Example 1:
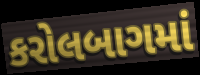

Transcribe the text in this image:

કરોલબાગમાં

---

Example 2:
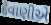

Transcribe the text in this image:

દેવાણીએ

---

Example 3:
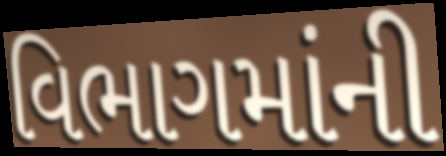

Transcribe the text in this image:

વિભાગમાંની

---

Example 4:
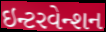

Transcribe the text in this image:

ઇન્ટરવેન્શન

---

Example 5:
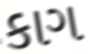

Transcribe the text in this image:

કાગ